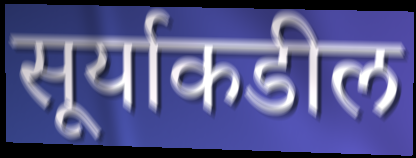
सूर्याकडील